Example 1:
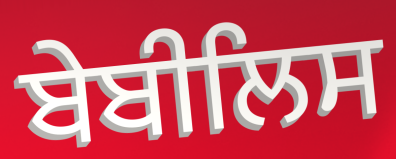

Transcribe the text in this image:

ਬੇਬੀਲਿਸ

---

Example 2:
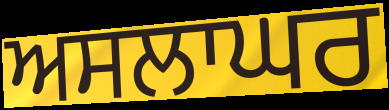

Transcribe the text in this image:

ਅਸਲਾਘਰ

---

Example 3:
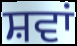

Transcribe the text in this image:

ਸ਼ਵਾਂ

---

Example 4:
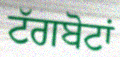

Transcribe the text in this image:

ਟੱਗਬੋਟਾਂ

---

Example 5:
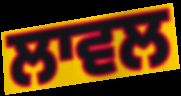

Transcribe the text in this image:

ਲਾਵਲ